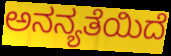
ಅನನ್ಯತೆಯಿದೆ